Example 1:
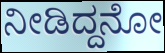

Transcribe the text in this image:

ನೀಡಿದ್ದನೋ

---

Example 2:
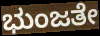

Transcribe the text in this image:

ಭುಂಜತೇ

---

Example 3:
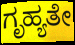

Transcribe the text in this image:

ಗೃಹ್ಯತೇ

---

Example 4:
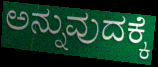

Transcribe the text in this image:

ಅನ್ನುವುದಕ್ಕೆ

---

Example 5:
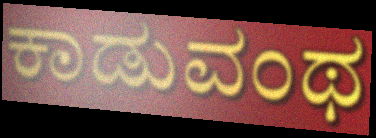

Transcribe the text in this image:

ಕಾಡುವಂಥ